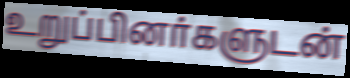
உறுப்பினர்களுடன்